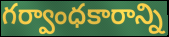
గర్వాంధకారాన్ని